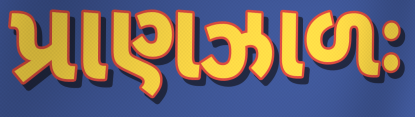
પ્રાણઝાળઃ